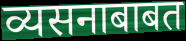
व्यसनाबाबत